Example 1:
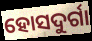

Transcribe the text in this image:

ହୋସଦୁର୍ଗା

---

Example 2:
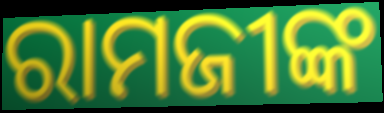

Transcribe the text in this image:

ରାମଜୀଙ୍କ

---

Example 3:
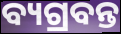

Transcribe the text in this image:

ବ୍ୟଗ୍ରବନ୍ତ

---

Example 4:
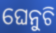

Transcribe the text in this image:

ଘେନୁଚି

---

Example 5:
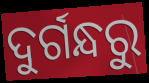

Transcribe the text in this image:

ଦୁର୍ଗନ୍ଧରୁ